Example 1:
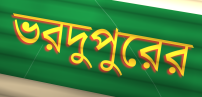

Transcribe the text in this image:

ভরদুপুরের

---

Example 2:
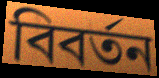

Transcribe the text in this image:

বিবর্তন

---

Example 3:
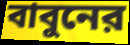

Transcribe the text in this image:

বাবুনের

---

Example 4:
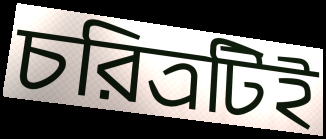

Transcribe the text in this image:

চরিত্রটিই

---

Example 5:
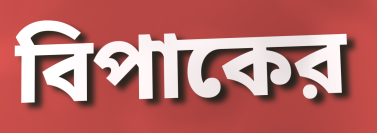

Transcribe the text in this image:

বিপাকের